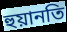
হুয়ানতি